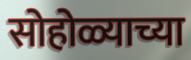
सोहोळ्याच्या